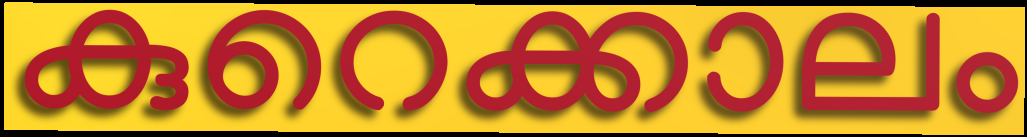
കുറെക്കാലം